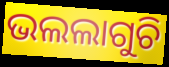
ଭଲଲାଗୁଚି